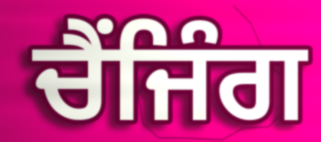
ਚੈਂਜਿੰਗ